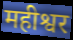
महीश्वर